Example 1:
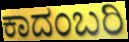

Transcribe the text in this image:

ಕಾದಂಬರಿ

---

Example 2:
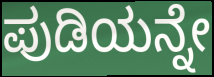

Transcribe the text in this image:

ಪುಡಿಯನ್ನೇ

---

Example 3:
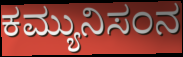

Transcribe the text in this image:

ಕಮ್ಯುನಿಸಂನ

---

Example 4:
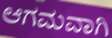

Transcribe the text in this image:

ಆಗಮವಾಗಿ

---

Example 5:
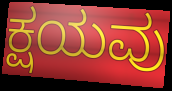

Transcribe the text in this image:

ಕ್ಷಯವು